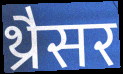
थ्रैसर